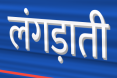
लंगड़ाती